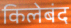
किलेबंद